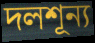
দলশূন্য